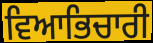
ਵਿਆਭਿਚਾਰੀ